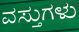
ವಸ್ತುಗಳು